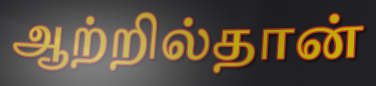
ஆற்றில்தான்